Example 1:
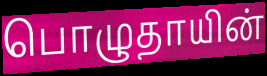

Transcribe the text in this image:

பொழுதாயின்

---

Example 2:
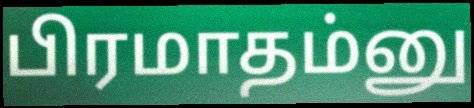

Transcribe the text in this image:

பிரமாதம்னு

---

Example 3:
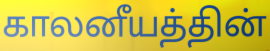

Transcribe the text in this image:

காலனீயத்தின்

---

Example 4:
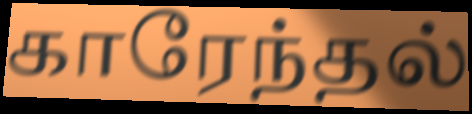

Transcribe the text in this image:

காரேந்தல்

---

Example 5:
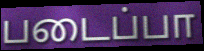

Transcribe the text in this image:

படைப்பா